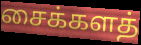
சைக்களத்